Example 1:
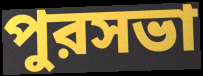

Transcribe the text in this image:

পুরসভা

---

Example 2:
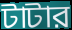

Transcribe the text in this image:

টাটার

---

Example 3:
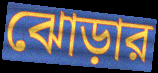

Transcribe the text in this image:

ঝোড়ার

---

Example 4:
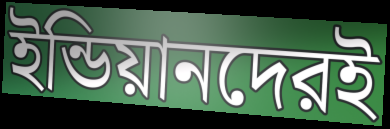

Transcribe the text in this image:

ইন্ডিয়ানদেরই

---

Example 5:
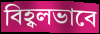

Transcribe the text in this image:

বিহ্বলভাবে